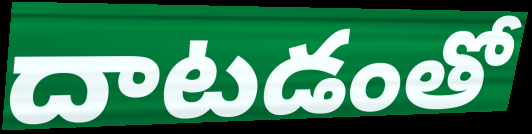
దాటడంతో